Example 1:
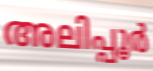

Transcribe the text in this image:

അലിപ്പൂർ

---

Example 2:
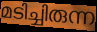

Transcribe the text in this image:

മടിച്ചിരുന്ന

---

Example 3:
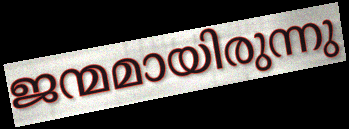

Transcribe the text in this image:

ജന്മമായിരുന്നു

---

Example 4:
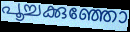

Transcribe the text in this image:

പൂച്ചക്കുഞ്ഞോ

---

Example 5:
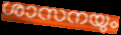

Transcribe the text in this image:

ശാസനയും